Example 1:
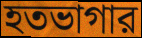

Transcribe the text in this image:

হতভাগার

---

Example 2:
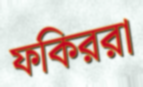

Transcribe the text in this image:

ফকিররা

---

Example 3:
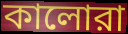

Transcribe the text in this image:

কালোরা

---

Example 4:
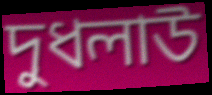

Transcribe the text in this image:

দুধলাউ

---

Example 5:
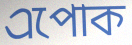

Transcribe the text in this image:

এপোক